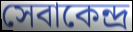
সেবাকেন্দ্র